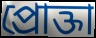
প্রোক্তা